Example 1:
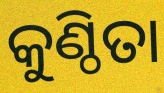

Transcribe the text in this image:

କୁଣ୍ଠିତା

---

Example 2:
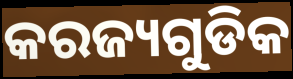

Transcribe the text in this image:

କରଜ୍ୟଗୁଡିକ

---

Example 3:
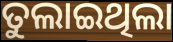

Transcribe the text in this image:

ତୁଲାଇଥିଲା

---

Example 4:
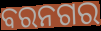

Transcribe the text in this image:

ବରନଗର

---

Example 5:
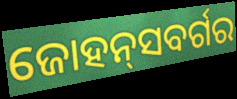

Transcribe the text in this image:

ଜୋହନ୍‌ସବର୍ଗର